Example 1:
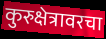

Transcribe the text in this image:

कुरुक्षेत्रावरचा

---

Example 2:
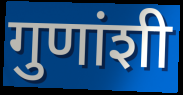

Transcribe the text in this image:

गुणांशी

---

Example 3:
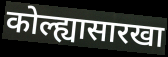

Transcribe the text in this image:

कोल्ह्यासारखा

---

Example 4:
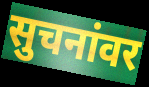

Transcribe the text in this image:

सुचनांवर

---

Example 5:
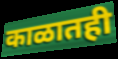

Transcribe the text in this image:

काळातही